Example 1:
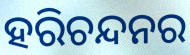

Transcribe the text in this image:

ହରିଚନ୍ଦନର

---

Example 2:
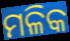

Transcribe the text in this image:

ମଳିକ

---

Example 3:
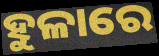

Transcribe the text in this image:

ହୁଳାରେ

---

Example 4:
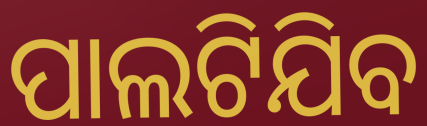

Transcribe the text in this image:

ପାଲଟିଯିବ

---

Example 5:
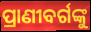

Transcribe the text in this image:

ପ୍ରାଣୀବର୍ଗଙ୍କୁ